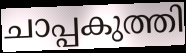
ചാപ്പകുത്തി